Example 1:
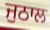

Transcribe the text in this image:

ਜੁਠਾਲ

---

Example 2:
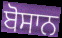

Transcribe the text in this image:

ਬੋਸਾਨ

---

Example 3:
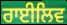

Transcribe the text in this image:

ਰਾਈਲਿਵ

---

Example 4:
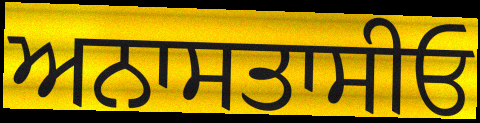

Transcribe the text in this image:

ਅਨਾਸਤਾਸੀਓ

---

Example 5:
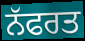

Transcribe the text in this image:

ਨੱਫਰਤ